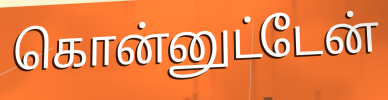
கொன்னுட்டேன்